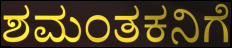
ಶಮಂತಕನಿಗೆ